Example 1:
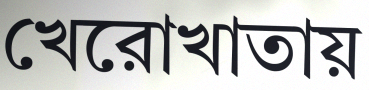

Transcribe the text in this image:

খেরোখাতায়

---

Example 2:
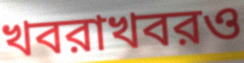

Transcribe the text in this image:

খবরাখবরও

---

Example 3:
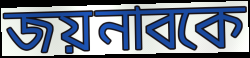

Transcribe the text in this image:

জয়নাবকে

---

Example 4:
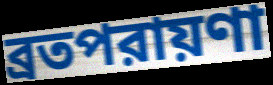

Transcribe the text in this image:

ব্রতপরায়ণা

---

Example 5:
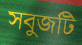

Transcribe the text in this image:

সবুজটি